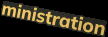
ministration